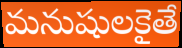
మనుషులకైతే